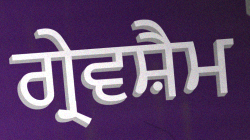
ਗ੍ਰੇਵਸ਼ੈਮ